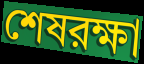
শেষরক্ষা